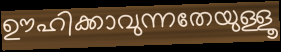
ഊഹിക്കാവുന്നതേയുള്ളൂ